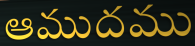
ఆముదము